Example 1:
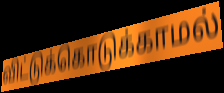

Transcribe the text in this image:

விட்டுக்கொடுக்காமல்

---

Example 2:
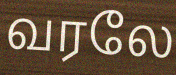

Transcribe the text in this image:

வரலே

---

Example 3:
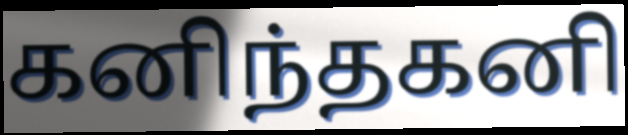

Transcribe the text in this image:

கனிந்தகனி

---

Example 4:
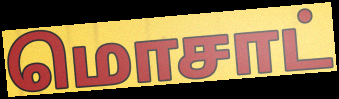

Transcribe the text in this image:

மொசாட்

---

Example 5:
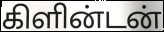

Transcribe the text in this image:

கிளின்டன்